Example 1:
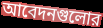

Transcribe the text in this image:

আবেদনগুলোর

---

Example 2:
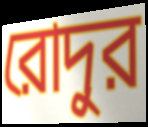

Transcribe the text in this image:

রোদুর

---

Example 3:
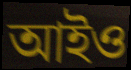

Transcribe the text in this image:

আইও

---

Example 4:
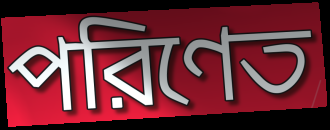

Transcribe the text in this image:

পরিণেত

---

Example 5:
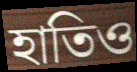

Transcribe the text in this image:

হাতিও